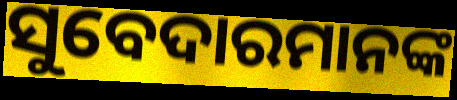
ସୁବେଦାରମାନଙ୍କ